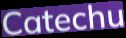
Catechu